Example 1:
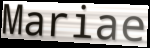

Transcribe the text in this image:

Mariae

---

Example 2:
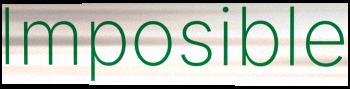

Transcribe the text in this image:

Imposible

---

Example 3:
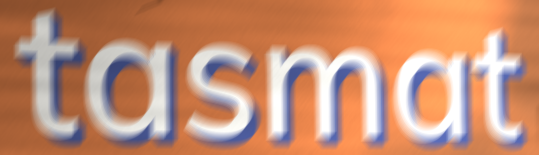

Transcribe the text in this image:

tasmat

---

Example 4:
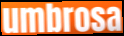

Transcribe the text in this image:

umbrosa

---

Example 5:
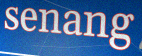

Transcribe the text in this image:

senang